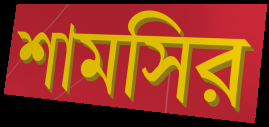
শামসির